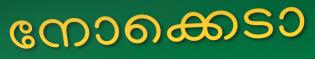
നോക്കെടാ